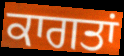
ਕਾਗਤਾਂ